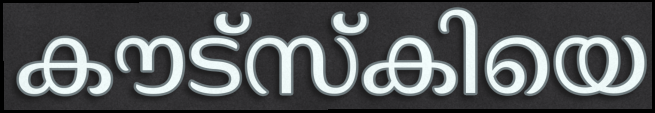
കൗട്സ്കിയെ